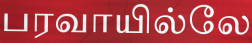
பரவாயில்லே